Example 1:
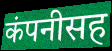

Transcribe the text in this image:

कंपनीसह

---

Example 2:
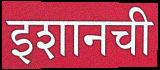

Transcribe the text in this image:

इशानची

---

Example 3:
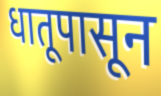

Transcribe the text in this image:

धातूपासून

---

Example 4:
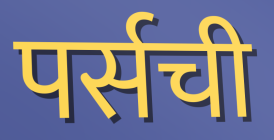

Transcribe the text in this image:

पर्सची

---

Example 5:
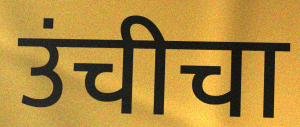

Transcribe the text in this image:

उंचीचा